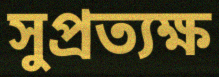
সুপ্রত্যক্ষ